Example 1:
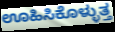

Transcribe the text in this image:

ಊಹಿಸಿಕೊಳ್ಳುತ್ತ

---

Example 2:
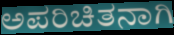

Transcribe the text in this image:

ಅಪರಿಚಿತನಾಗಿ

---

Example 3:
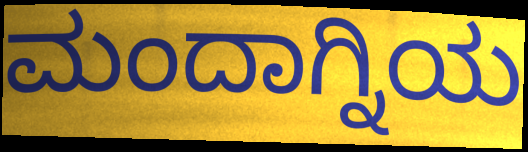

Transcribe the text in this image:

ಮಂದಾಗ್ನಿಯ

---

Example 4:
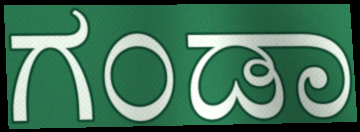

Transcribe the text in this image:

ಗಂಡಾ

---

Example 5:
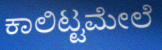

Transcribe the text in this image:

ಕಾಲಿಟ್ಟಮೇಲೆ